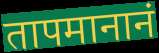
तापमानानं